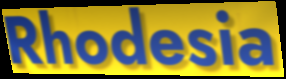
Rhodesia